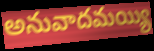
అనువాదమయ్యి